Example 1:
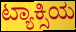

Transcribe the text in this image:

ಟ್ಯಾಕ್ಸಿಯ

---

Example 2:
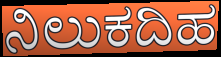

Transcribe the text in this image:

ನಿಲುಕದಿಹ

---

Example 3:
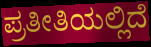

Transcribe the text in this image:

ಪ್ರತೀತಿಯಲ್ಲಿದೆ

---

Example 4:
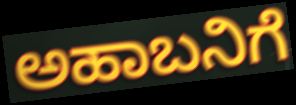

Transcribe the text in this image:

ಅಹಾಬನಿಗೆ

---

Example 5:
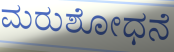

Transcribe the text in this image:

ಮರುಶೋಧನೆ